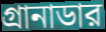
গ্রানাডার